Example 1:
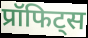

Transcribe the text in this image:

प्रॉफिट्स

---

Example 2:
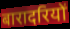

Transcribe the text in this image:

बारादरियों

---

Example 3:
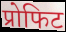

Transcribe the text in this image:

प्रोफिट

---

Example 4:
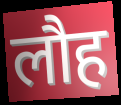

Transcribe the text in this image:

लौह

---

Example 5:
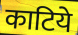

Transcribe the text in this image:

काटिये